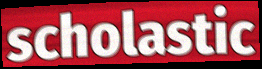
scholastic